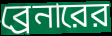
ব্রেনারের